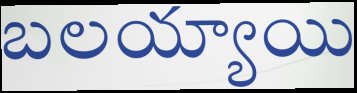
బలయ్యాయి